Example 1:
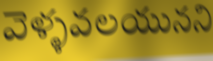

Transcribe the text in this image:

వెళ్ళవలయునని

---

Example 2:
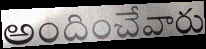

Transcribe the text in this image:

అందించేవారు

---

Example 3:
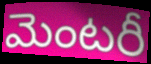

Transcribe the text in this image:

మెంటరీ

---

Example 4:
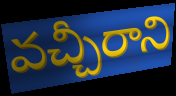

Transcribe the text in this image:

వచ్చీరాని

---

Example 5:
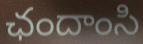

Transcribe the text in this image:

ఛందాంసి